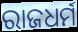
ରାଜଧର୍ମ